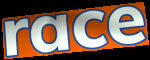
race